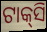
ଟାକ୍‍ସି